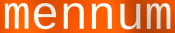
mennum